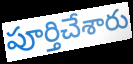
పూర్తిచేశారు